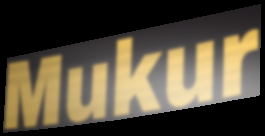
Mukur